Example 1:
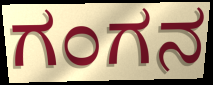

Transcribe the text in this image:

ಗಂಗನ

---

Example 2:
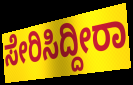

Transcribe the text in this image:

ಸೇರಿಸಿದ್ದೀರಾ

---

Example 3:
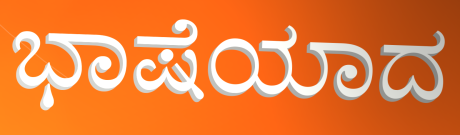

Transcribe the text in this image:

ಭಾಷೆಯಾದ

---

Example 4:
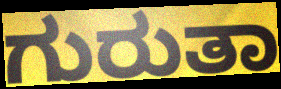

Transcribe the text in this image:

ಗುರುತಾ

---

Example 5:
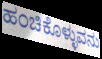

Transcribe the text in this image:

ಹಂಚಿಕೊಳ್ಳುವನು